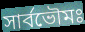
সার্বভৌমঃ